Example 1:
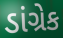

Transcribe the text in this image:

ડાંગ્રેક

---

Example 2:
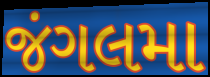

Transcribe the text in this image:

જંગલમા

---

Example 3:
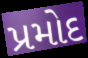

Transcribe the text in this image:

પ્રમોદ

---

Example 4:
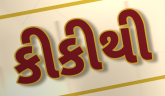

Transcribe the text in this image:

કીકીથી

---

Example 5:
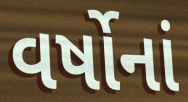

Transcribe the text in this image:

વર્ષોનાં